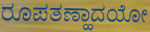
ರೂಪತಣ್ಹಾದಯೋ